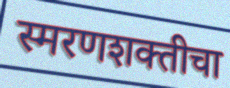
स्मरणशक्तीचा